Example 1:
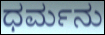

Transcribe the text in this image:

ಧರ್ಮನು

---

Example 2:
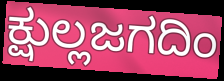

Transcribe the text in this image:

ಕ್ಷುಲ್ಲಜಗದಿಂ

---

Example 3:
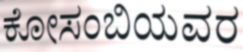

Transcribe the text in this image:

ಕೋಸಂಬಿಯವರ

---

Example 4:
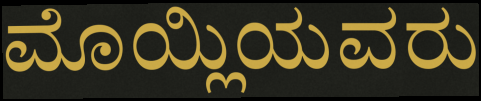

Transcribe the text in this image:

ಮೊಯ್ಲಿಯವರು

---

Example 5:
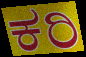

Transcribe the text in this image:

ಕರಿ